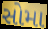
સોમા